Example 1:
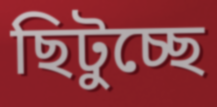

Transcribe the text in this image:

ছিটুচ্ছে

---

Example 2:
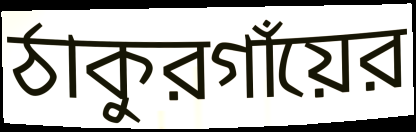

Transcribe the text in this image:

ঠাকুরগাঁয়ের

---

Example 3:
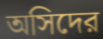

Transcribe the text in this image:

অসিদের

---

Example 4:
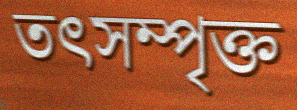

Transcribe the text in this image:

তৎসম্পৃক্ত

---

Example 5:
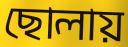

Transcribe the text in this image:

ছোলায়